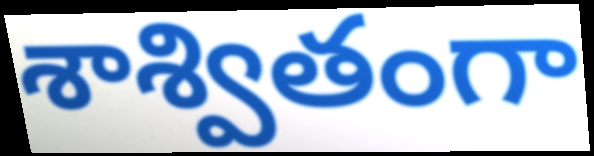
శాశ్వితంగా